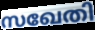
സഖേതി